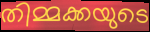
തിമ്മക്കയുടെ